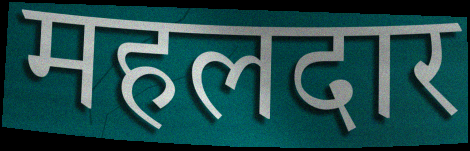
महलदार